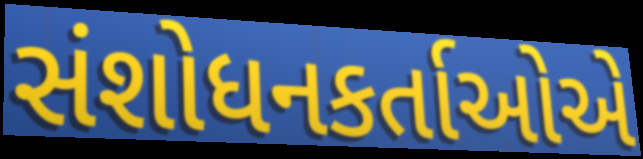
સંશોધનકર્તાઓએ